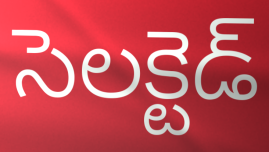
సెలక్టెడ్